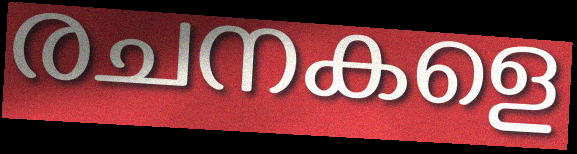
രചനകളെ